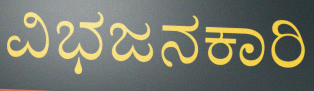
ವಿಭಜನಕಾರಿ